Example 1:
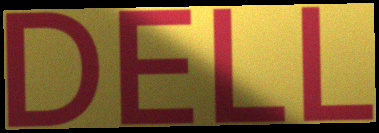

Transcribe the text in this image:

DELL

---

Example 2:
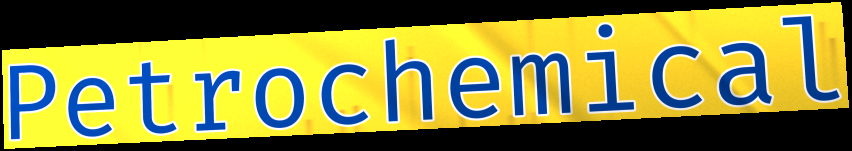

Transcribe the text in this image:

Petrochemical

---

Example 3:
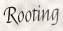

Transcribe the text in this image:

Rooting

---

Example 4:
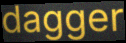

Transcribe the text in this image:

dagger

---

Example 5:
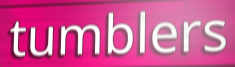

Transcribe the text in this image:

tumblers